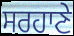
ਸਰਹਾਣੇ